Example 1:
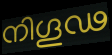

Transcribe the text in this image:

നിഗൂഢ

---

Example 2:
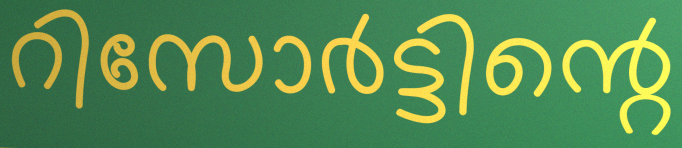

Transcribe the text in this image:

റിസോർട്ടിന്റെ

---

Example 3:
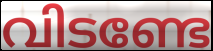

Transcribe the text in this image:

വിടണ്ടേ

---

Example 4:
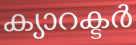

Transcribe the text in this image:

ക്യാറക്ടർ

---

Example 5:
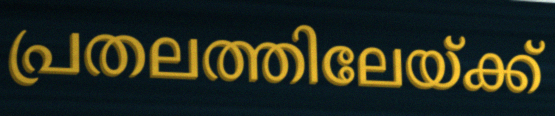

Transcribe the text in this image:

പ്രതലത്തിലേയ്ക്ക്